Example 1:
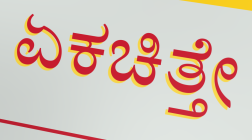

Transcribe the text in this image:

ಏಕಚಿತ್ತೇ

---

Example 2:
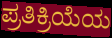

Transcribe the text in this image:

ಪ್ರತಿಕ್ರಿಯೆಯ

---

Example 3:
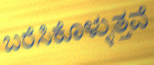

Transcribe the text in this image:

ಬರೆಸಿಕೊಳ್ಳುತ್ತವೆ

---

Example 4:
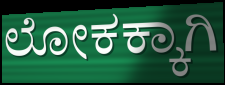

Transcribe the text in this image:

ಲೋಕಕ್ಕಾಗಿ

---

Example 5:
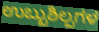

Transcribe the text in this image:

ಉಬ್ಬುಶಿಲ್ಪಗಳ